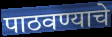
पाठवण्याचे